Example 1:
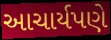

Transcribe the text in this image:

આચાર્યપણે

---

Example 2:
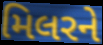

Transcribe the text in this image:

મિલરને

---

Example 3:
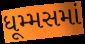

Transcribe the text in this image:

ધૂમ્મસમાં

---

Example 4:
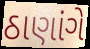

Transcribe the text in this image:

ઠાણાંગે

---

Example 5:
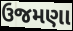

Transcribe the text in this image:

ઉજમણા